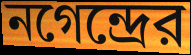
নগেন্দ্রের